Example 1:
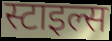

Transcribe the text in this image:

स्टाइल्स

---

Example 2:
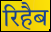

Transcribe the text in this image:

रिहैब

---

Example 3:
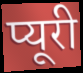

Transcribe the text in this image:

प्यूरी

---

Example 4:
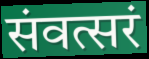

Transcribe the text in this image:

संवत्सरं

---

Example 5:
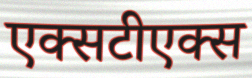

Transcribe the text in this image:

एक्सटीएक्स